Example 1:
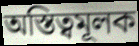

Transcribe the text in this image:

অস্তিত্বমূলক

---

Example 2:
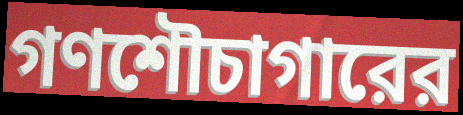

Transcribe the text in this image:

গণশৌচাগারের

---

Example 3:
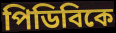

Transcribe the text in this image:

পিডিবিকে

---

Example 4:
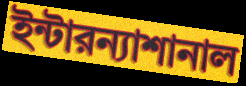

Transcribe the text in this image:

ইন্টারন্যাশানাল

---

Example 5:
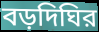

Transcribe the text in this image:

বড়দিঘির